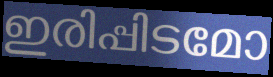
ഇരിപ്പിടമോ